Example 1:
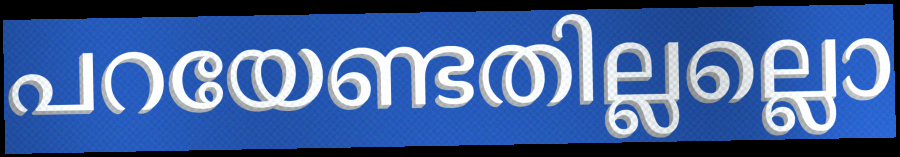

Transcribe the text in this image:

പറയേണ്ടതില്ലല്ലൊ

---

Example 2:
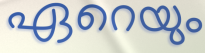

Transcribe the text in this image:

ഏറെയും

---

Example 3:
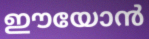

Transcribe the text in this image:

ഈയോൻ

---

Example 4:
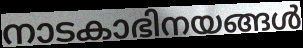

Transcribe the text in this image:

നാടകാഭിനയങ്ങൾ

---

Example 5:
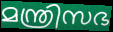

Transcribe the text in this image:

മന്ത്രിസഭ